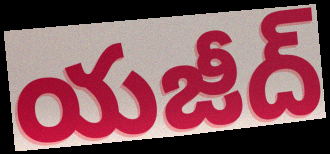
యజీద్